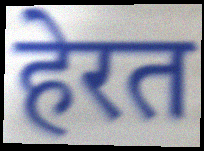
हेरत